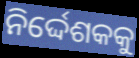
ନିର୍ଦ୍ଦେଶକକୁ